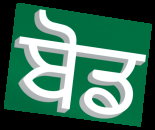
ਬੋਡ